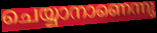
ചെയ്യാനാണെന്നു